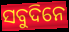
ସବୁଦିନେ